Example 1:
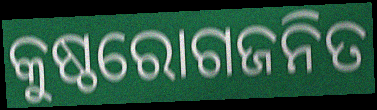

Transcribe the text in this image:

କୁଷ୍ଠରୋଗଜନିତ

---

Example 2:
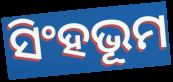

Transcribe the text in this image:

ସିଂହଭୂମ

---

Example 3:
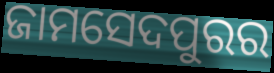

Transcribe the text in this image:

ଜାମସେଦପୁରର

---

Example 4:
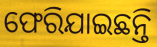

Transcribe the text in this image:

ଫେରିଯାଇଛନ୍ତି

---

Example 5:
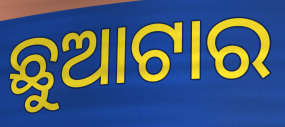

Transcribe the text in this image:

ଛୁଆଟାର